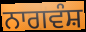
ਨਾਗਵੰਸ਼